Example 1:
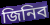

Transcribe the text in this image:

জিনিব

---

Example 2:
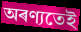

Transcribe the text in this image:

অৰণ্যতেই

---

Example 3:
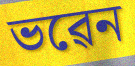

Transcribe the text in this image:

ভৱেন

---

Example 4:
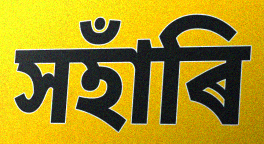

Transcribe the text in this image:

সহাঁৰি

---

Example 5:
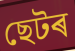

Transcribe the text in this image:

ছেটৰ